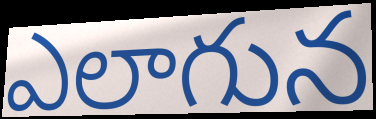
ఎలాగున